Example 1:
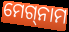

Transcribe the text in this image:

ମେଗ୍‌ନାମ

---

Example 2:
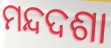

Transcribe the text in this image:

ମନ୍ଦଦଶା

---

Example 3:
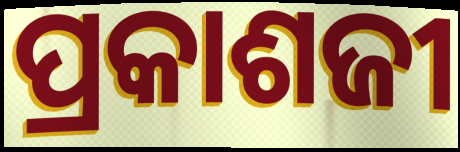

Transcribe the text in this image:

ପ୍ରକାଶଜୀ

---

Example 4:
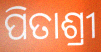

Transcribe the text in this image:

ପିତାଶ୍ରୀ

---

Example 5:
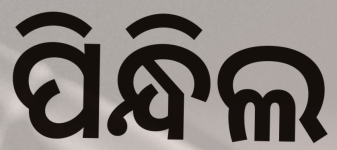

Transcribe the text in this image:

ପିନ୍ଧିଲ